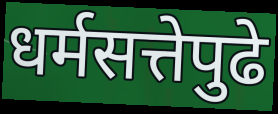
धर्मसत्तेपुढे